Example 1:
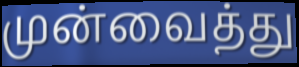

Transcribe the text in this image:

முன்வைத்து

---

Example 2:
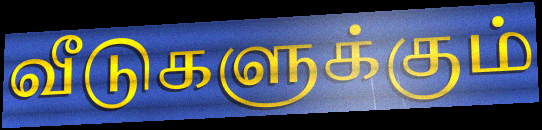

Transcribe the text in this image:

வீடுகளுக்கும்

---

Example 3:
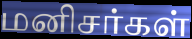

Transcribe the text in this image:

மனிசர்கள்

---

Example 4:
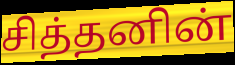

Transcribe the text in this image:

சித்தனின்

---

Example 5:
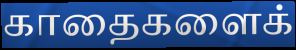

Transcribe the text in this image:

காதைகளைக்